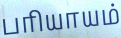
பரியாயம்